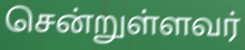
சென்றுள்ளவர்